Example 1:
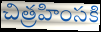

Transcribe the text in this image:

చిత్రహింసకి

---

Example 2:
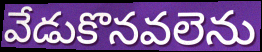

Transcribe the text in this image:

వేడుకొనవలెను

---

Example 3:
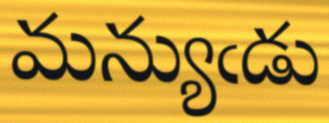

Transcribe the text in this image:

మన్యుఁడు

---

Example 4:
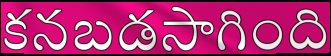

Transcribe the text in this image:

కనబడసాగింది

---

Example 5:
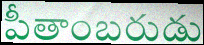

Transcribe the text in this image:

పీతాంబరుడు